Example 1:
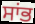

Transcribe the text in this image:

ਸਾਂਭ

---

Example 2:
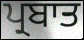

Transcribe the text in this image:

ਪ੍ਰਬਾਤ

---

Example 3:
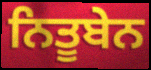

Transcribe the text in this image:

ਨਿਤੂਬੇਨ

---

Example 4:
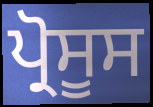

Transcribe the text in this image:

ਪ੍ਰੋਸੂਸ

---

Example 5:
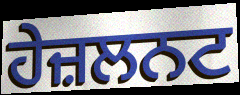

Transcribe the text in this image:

ਹੇਜ਼ਲਨਟ